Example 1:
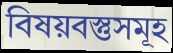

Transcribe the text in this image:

বিষয়বস্তুসমূহ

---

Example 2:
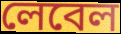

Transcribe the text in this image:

লেবেল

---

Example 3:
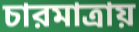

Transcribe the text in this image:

চারমাত্রায়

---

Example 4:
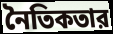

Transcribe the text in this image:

নৈতিকতার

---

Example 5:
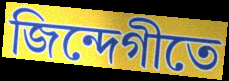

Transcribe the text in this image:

জিন্দেগীতে